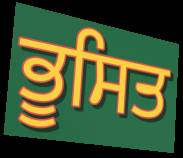
ਭੂਸਿਤ